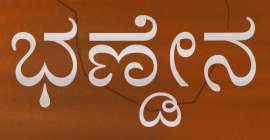
ಭಣ್ಡೇನ